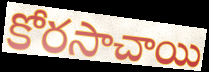
కోరసాచాయి